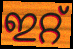
ഇറ്റ്